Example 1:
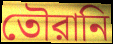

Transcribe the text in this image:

তৌরানি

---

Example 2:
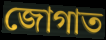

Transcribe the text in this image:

জোগাত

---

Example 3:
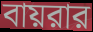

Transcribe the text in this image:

বায়রার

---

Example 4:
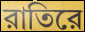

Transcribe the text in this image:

রাতিরে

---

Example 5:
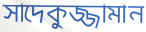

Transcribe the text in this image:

সাদেকুজ্জামান